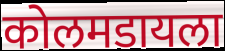
कोलमडायला